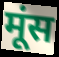
मूंस